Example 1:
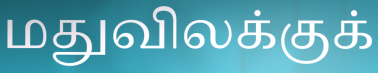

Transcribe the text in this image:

மதுவிலக்குக்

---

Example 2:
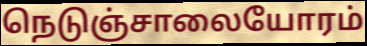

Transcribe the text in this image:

நெடுஞ்சாலையோரம்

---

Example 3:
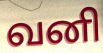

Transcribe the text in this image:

வனி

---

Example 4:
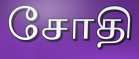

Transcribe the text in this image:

சோதி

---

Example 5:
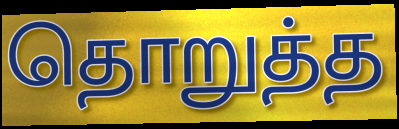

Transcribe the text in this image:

தொறுத்த